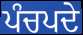
ਪੰਚਪਦੇ